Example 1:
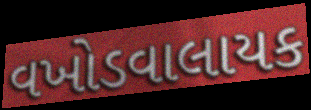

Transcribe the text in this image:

વખોડવાલાયક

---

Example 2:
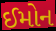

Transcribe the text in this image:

ઈમોન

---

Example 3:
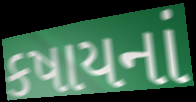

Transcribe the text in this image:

કષાયનાં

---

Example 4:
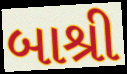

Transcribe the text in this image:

બાશ્રી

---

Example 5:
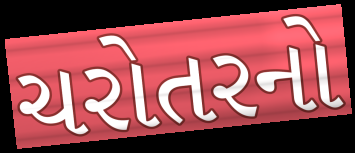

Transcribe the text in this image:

ચરોતરનો